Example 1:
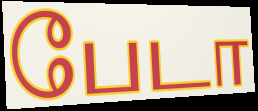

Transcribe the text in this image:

பேடா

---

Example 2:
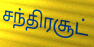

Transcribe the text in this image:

சந்திரசூட்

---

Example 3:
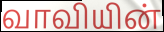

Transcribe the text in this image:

வாவியின்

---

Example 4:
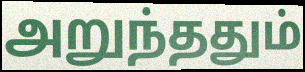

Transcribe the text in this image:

அறுந்ததும்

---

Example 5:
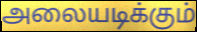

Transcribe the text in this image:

அலையடிக்கும்